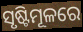
ସୃଷ୍ଟିମୂଳରେ